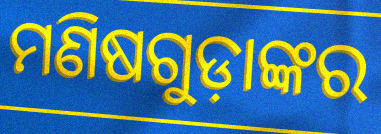
ମଣିଷଗୁଡ଼ାଙ୍କର